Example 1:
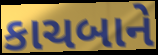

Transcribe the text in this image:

કાચબાને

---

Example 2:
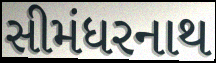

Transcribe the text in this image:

સીમંધરનાથ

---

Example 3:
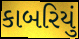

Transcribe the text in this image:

કાબરિયું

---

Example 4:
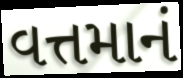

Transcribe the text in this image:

વત્તમાનં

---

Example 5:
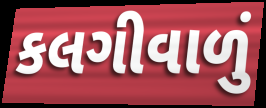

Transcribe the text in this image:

કલગીવાળું